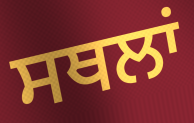
ਸਥਲਾਂ